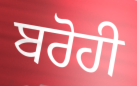
ਬਰੋਹੀ